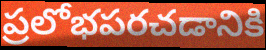
ప్రలోభపరచడానికి